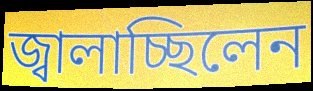
জ্বালাচ্ছিলেন